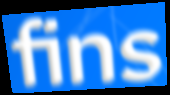
fins